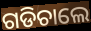
ଗଡିଚାଲେ